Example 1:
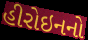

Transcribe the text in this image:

હીરોઇનનો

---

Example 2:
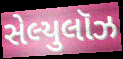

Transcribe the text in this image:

સેલ્યુલૉઝ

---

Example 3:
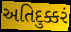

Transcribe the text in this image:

અતિદુક્કરં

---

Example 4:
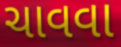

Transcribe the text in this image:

ચાવવા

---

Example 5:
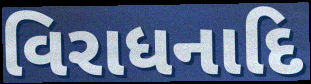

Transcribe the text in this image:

વિરાધનાદિ